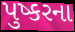
પુષ્કરના